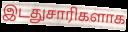
இடதுசாரிகளாக